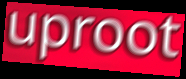
uproot